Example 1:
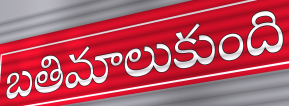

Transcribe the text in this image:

బతిమాలుకుంది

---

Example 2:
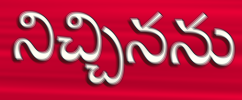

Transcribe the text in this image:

నిచ్చినను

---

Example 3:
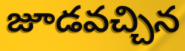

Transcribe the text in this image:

జూడవచ్చిన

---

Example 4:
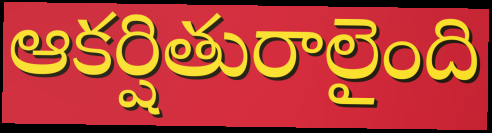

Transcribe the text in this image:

ఆకర్షితురాలైంది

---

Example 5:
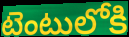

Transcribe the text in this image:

టెంటులోకి